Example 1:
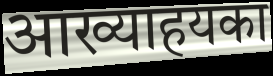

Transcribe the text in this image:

आख्याहयका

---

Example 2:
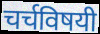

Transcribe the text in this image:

चर्चविषयी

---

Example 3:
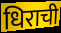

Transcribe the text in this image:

धिराची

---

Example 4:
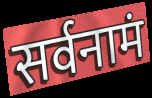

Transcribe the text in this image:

सर्वनामं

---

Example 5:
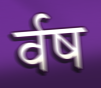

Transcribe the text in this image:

र्वष